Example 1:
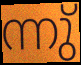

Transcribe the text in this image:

ന്നു്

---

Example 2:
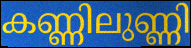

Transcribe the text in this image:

കണ്ണിലുണ്ണി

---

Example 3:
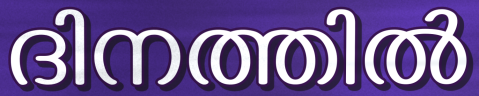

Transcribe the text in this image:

ദിനത്തിൽ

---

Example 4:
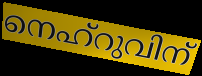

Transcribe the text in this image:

നെഹ്റുവിന്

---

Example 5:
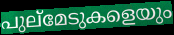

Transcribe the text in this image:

പുല്മേടുകളെയും